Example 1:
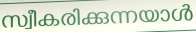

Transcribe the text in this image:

സ്വീകരിക്കുന്നയാൾ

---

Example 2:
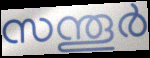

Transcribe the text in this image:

സന്തൂർ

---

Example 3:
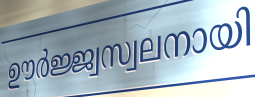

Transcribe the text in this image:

ഊർജ്ജ്വസ്വലനായി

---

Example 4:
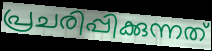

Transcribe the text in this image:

പ്രചരിപ്പിക്കുന്നത്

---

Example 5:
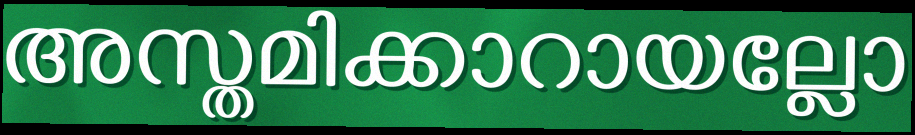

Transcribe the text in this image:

അസ്തമിക്കാറായല്ലോ